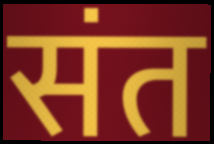
संत